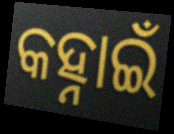
କହ୍ନାଇଁ